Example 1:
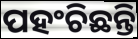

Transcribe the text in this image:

ପହଂଚିଛନ୍ତି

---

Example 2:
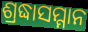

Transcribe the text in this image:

ଶ୍ରଦ୍ଧାସମ୍ମାନ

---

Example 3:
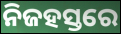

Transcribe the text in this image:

ନିଜହସ୍ତରେ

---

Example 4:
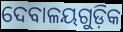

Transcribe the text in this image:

ଦେବାଳୟଗୁଡ଼ିକ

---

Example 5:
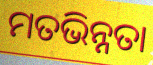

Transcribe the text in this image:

ମତଭିନ୍ନତା